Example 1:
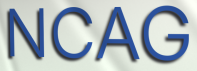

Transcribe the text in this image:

NCAG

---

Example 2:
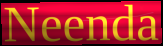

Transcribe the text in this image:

Neenda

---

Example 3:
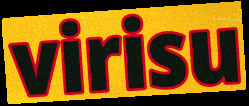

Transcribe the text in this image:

virisu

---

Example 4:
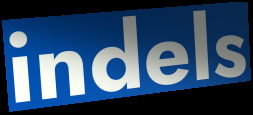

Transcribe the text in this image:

indels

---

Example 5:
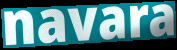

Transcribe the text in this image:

navara